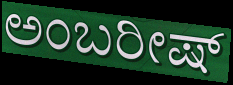
ಅಂಬರೀಷ್